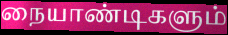
நையாண்டிகளும்